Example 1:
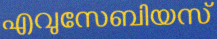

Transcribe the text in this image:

എവുസേബിയസ്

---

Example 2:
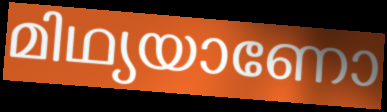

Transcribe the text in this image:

മിഥ്യയാണോ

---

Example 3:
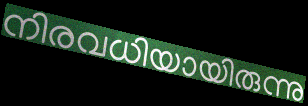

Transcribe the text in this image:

നിരവധിയായിരുന്നു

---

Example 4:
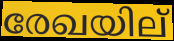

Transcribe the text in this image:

രേഖയില്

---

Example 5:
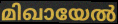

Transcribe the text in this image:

മിഖായേൽ